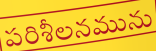
పరిశీలనమును